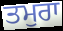
ਤਮੁਰਾ